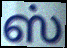
ஸ்